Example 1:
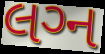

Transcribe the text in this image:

લગ્‍ન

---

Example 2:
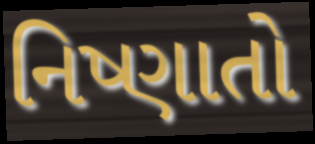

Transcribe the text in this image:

નિષ્ણાતો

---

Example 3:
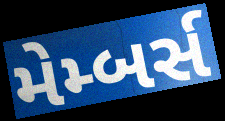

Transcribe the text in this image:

મેમ્બર્સ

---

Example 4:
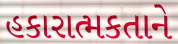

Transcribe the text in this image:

હકારાત્મકતાને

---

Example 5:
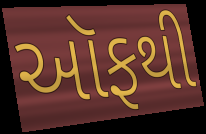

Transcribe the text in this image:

ઑફથી